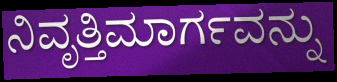
ನಿವೃತ್ತಿಮಾರ್ಗವನ್ನು